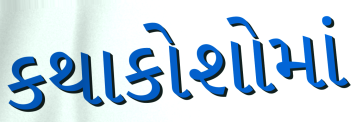
કથાકોશોમાં